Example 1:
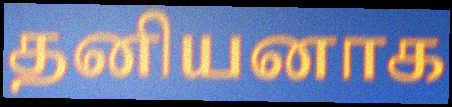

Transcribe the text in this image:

தனியனாக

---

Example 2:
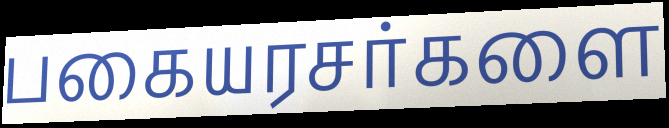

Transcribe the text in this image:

பகையரசர்களை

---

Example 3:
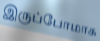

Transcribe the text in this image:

இருப்போமாக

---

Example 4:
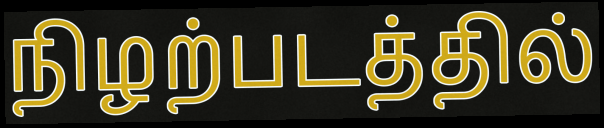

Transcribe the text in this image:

நிழற்படத்தில்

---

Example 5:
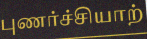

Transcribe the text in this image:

புணர்ச்சியாற்